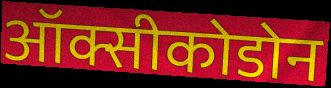
ऑक्सीकोडोन